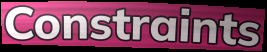
Constraints